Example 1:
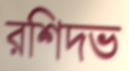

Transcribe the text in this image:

রশিদভ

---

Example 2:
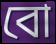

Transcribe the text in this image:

বো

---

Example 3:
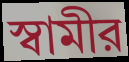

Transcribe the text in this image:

স্বামীর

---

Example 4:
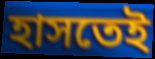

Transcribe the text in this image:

হাসতেই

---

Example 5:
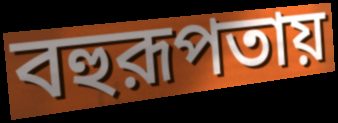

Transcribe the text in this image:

বহুরূপতায়